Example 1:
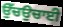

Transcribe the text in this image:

ਉੱਚਉਚਾਈ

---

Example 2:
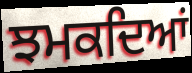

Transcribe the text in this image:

ਝਮਕਦਿਆਂ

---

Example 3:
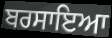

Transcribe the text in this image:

ਬਰਸਾਇਆ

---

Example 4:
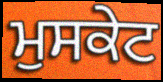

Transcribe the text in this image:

ਮੁਸਕੇਟ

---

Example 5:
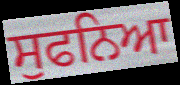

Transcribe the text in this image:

ਸੁਫਨਿਆ